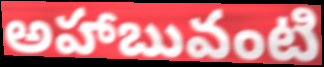
అహాబువంటి